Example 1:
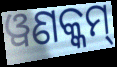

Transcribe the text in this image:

ୱଣକ୍କମ୍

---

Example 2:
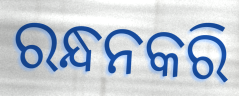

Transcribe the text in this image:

ରନ୍ଧନକରି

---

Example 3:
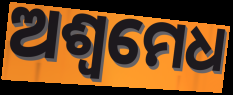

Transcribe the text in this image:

ଅଶ୍ୱମେଧ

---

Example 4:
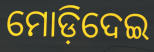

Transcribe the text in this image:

ମୋଡ଼ିଦେଇ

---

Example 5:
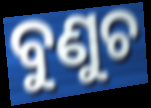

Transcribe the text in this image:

ବୁଣୁଚ